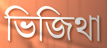
ভিজিথা